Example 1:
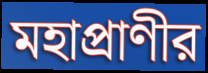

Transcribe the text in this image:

মহাপ্রাণীর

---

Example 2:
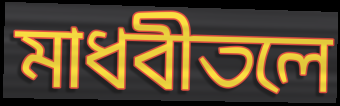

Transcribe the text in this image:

মাধবীতলে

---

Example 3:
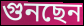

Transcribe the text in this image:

গুনছেন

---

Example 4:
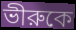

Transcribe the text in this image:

ভীরুকে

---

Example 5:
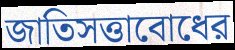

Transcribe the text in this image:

জাতিসত্তাবোধের